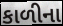
કાળીના